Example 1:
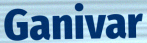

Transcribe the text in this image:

Ganivar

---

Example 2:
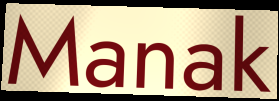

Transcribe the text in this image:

Manak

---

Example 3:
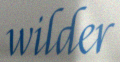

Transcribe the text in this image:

wilder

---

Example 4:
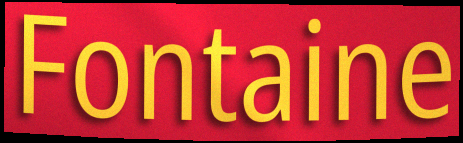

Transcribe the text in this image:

Fontaine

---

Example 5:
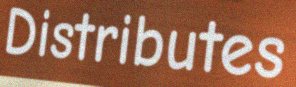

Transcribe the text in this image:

Distributes